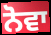
ਨੋਵਾ